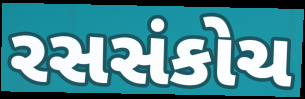
રસસંકોચ